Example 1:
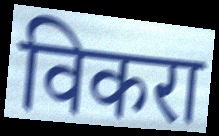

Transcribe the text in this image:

विकरा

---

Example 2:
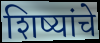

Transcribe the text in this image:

शिष्यांचे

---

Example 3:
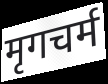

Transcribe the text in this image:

मृगचर्म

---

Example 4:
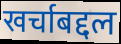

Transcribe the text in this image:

खर्चाबद्दल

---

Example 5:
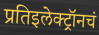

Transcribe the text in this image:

प्रतिइलेक्ट्रॉनचं